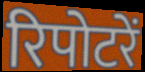
रिपोटरें